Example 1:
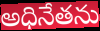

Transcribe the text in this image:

అధినేతను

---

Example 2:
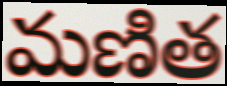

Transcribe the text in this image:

మణిత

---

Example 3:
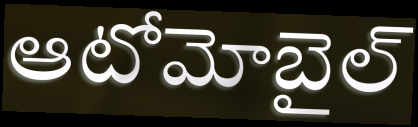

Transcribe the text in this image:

ఆటోమోబైల్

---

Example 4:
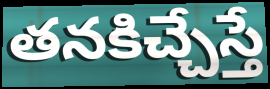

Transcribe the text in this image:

తనకిచ్చేస్తే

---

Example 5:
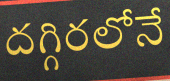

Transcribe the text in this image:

దగ్గిరలోనే